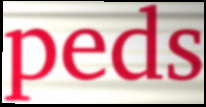
peds